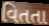
વિતતા